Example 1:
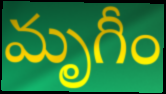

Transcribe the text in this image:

మృగీం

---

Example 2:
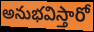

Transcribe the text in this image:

అనుభవిస్తారో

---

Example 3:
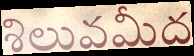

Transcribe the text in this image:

శిలువమీద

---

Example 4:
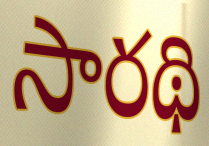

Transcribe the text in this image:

సారథి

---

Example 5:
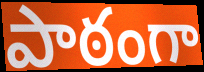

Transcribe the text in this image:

పాఠంగా